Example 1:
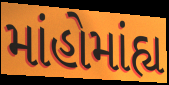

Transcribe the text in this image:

માંહોમાંહ્ય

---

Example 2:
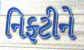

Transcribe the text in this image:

નિફ્ટીને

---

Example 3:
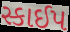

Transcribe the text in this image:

સ્કાઈપ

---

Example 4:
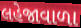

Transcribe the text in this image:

લહેજાવાળા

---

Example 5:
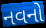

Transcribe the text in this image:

નવનો